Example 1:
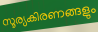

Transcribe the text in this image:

സൂര്യകിരണങ്ങളും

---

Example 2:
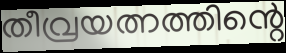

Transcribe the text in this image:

തീവ്രയത്നത്തിന്റെ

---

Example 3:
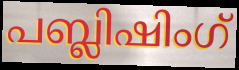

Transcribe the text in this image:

പബ്ലിഷിംഗ്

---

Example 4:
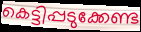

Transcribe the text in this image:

കെട്ടിപ്പടുക്കേണ്ട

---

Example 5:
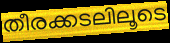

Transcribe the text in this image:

തീരക്കടലിലൂടെ